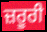
ਜ਼ਰੂਰੀ